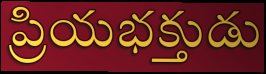
ప్రియభక్తుడు